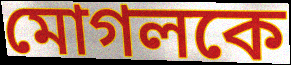
মোগলকে